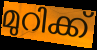
മുറിക്ക്